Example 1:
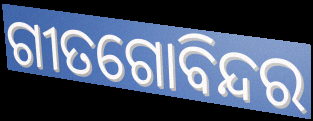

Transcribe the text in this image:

ଗୀତଗୋବିନ୍ଦର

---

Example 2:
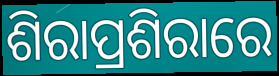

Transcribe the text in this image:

ଶିରାପ୍ରଶିରାରେ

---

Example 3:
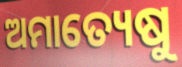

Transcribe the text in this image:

ଅମାତ୍ୟେଷୁ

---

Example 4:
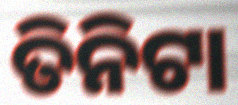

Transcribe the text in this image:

ତିନିଟା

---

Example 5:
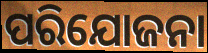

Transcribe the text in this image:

ପରିଯୋଜନା